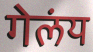
गेलंय